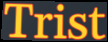
Trist